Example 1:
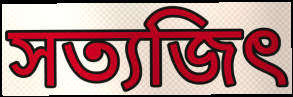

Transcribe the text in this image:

সত্যজিৎ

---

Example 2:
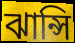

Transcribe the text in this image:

ঝান্সি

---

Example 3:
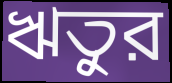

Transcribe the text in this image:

ঋতুর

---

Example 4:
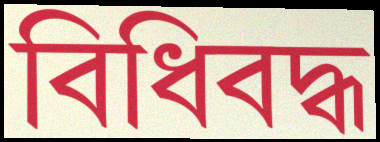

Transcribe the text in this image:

বিধিবদ্ধ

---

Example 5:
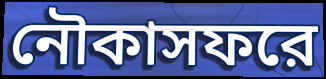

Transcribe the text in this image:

নৌকাসফরে